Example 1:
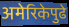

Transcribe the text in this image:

अमेरिकेपुढे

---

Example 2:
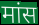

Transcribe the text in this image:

मांस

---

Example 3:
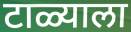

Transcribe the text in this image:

टाळ्याला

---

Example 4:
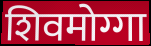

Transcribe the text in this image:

शिवमोग्गा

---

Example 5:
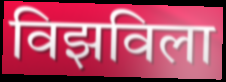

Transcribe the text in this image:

विझविला